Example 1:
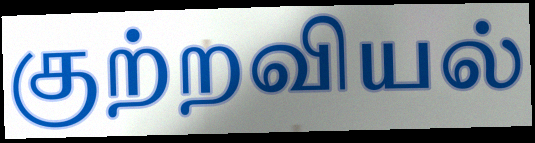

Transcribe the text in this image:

குற்றவியல்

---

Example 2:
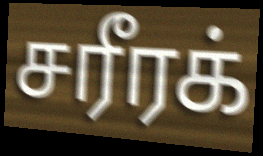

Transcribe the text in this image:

சரீரக்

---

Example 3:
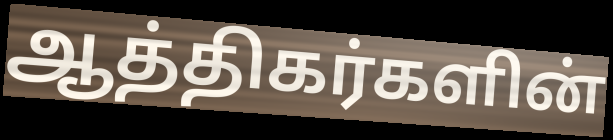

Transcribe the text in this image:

ஆத்திகர்களின்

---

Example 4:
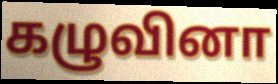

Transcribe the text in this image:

கழுவினா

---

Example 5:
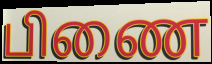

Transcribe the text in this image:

பிணை